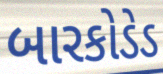
બારકોડેડ